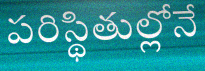
పరిస్థితుల్లోనే